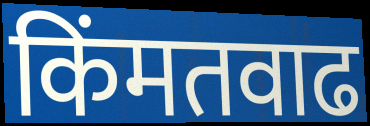
किंमतवाढ